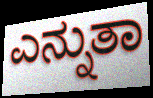
ಎನ್ನುತಾ